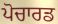
ਪੋਚਾਰਡ